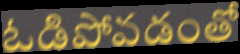
ఓడిపోవడంతో